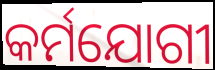
କର୍ମଯୋଗୀ